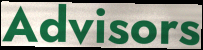
Advisors